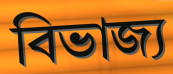
বিভাজ্য